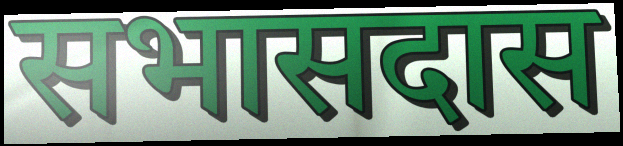
सभासदास